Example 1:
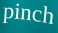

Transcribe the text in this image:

pinch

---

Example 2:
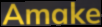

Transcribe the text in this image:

Amake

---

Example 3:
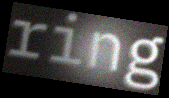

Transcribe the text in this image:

ring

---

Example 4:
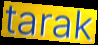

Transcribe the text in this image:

tarak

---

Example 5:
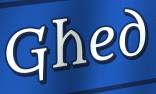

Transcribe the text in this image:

Ghed